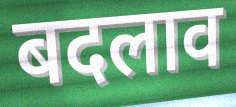
बदलाव